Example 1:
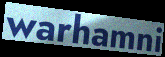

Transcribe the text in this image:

warhamni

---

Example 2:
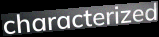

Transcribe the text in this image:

characterized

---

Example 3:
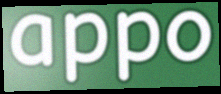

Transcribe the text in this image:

appo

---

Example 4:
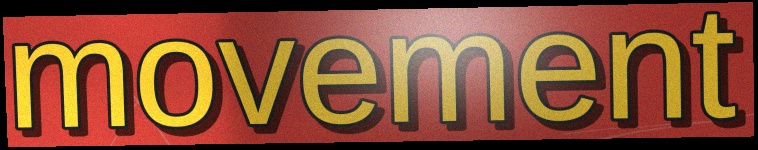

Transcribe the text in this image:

movement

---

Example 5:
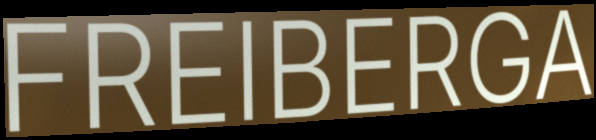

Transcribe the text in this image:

FREIBERGA